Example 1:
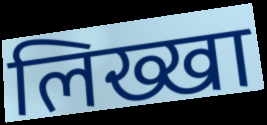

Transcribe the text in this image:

लिख्खा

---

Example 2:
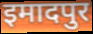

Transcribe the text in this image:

इमादपुर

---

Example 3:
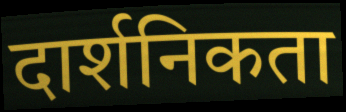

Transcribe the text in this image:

दार्शनिकता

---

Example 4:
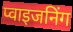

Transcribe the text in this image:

प्वाइजनिंग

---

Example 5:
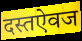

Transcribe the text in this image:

दस्तऐवज